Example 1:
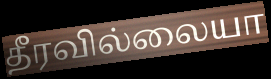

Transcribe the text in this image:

தீரவில்லையா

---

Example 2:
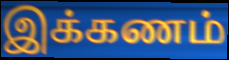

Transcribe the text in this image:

இக்கணம்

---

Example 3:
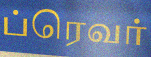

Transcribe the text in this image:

ப்ரெவர்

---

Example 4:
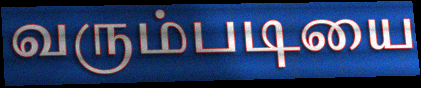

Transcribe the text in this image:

வரும்படியை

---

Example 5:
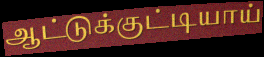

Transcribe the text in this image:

ஆட்டுக்குட்டியாய்